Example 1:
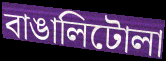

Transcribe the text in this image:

বাঙালিটোলা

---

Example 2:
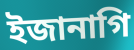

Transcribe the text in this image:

ইজানাগি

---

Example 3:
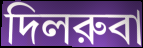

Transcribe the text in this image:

দিলরুবা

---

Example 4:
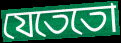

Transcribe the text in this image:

যেতেতো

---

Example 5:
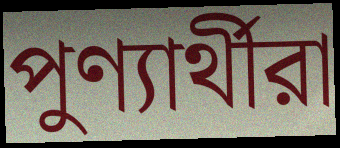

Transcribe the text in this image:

পুণ্যার্থীরা